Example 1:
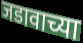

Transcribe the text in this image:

जडावाच्या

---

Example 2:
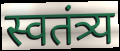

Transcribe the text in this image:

स्वतंत्र्य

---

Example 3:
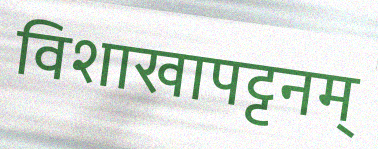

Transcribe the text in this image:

विशाखापट्टनम्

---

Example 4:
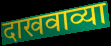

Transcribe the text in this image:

दाखवाव्या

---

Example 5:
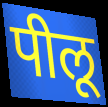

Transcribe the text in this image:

पीलू